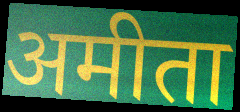
अमीता